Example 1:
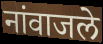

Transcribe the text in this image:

नांवाजले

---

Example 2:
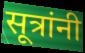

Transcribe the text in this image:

सूत्रांनी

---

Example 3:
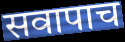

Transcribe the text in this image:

सवापाच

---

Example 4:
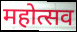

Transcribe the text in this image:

महोत्सव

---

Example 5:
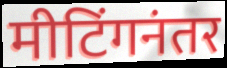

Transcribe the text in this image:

मीटिंगनंतर